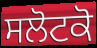
ਸਲੋਟਕੋ